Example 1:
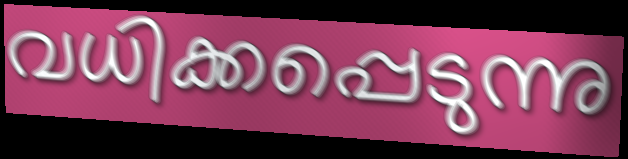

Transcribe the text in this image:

വധിക്കപ്പെടുന്നു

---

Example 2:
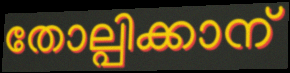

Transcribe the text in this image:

തോല്പിക്കാന്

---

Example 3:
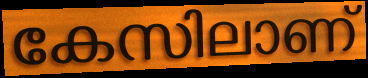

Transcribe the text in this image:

കേസിലാണ്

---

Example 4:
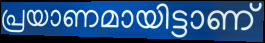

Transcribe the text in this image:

പ്രയാണമായിട്ടാണ്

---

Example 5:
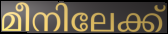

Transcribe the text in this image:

മീനിലേക്ക്